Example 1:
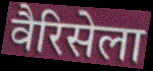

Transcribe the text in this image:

वैरिसेला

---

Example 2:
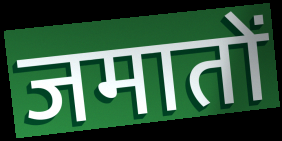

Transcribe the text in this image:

जमातों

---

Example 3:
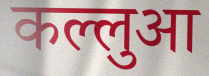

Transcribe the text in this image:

कल्लुआ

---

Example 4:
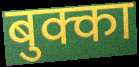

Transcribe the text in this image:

बुक्का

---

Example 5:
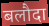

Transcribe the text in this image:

बलौदा